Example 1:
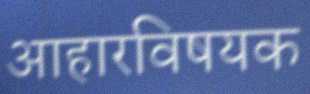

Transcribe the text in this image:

आहारविषयक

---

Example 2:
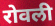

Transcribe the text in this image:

रोवली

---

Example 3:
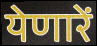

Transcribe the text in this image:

येणारें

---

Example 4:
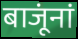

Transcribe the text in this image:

बाजूंनां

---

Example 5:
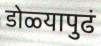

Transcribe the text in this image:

डोळ्यापुढं